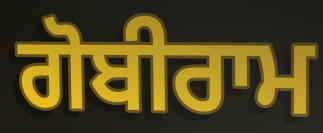
ਗੋਬੀਰਾਮ